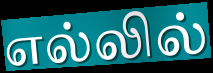
எல்லில்